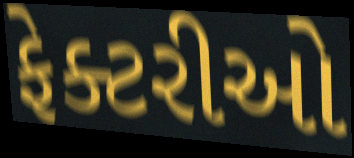
ફેક્ટરીઓ